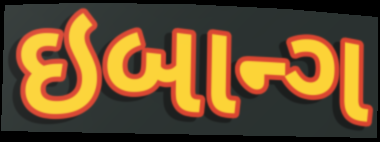
ઇબાન્ગ